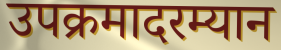
उपक्रमादरम्यान